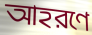
আহরণে